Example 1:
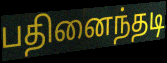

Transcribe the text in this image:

பதினைந்தடி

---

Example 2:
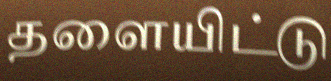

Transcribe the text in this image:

தளையிட்டு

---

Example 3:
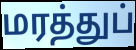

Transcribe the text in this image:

மரத்துப்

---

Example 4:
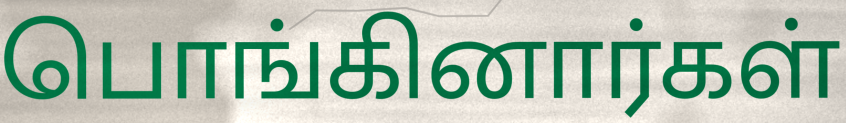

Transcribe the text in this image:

பொங்கினார்கள்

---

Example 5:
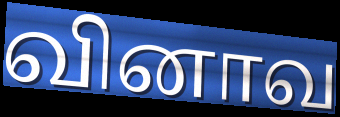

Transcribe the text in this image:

வினாவ